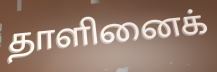
தாளினைக்